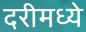
दरीमध्ये